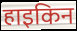
हाइकिन